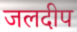
जलदीप